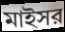
মাইসর